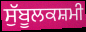
ਸੁੱਬੂਲਕਸ਼ਮੀ